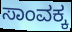
ಸಾಂವಕ್ಕ